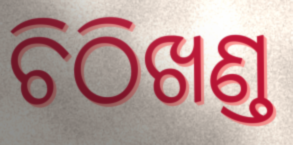
ଚିଠିଖଣ୍ଡ